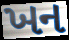
ખન